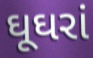
ઘૂઘરાં